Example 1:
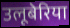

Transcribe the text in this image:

उलूबेरिया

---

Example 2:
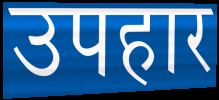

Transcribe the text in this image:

उपहार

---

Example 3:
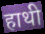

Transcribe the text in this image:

हाथी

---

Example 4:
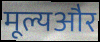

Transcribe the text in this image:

मूल्यऔर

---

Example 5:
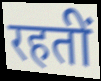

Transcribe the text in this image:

रहतीं